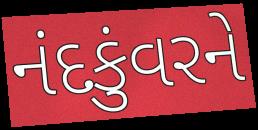
નંદકુંવરને